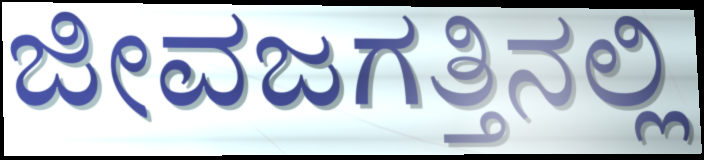
ಜೀವಜಗತ್ತಿನಲ್ಲಿ